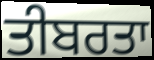
ਤੀਬਰਤਾ